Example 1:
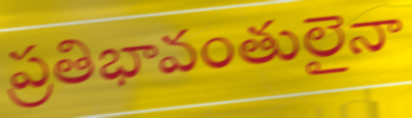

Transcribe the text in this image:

ప్రతిభావంతులైనా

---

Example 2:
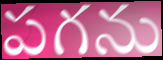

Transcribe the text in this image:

పగను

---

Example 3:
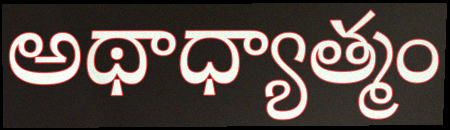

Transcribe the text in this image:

అథాధ్యాత్మం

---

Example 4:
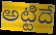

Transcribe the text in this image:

అట్టిదే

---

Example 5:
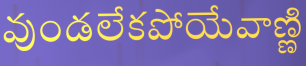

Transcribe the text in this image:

వుండలేకపోయేవాణ్ణి